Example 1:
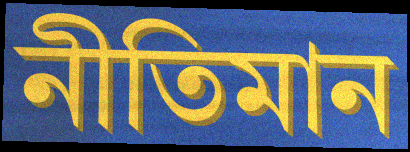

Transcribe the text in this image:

নীতিমান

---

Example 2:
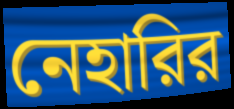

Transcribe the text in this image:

নেহারির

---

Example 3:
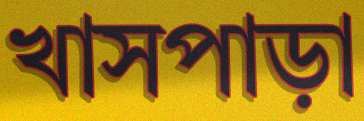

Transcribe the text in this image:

খাসপাড়া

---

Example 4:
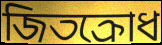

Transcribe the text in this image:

জিতক্রোধ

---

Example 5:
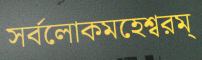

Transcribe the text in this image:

সর্বলোকমহেশ্বরম্